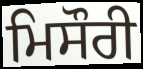
ਮਿਸੌਰੀ